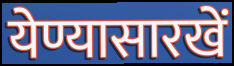
येण्यासारखें